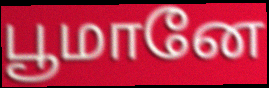
பூமானே